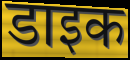
डाइक